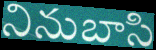
నినుబాసి